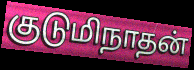
குடுமிநாதன்